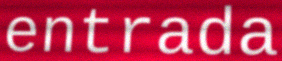
entrada